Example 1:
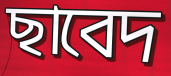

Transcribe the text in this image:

ছাবেদ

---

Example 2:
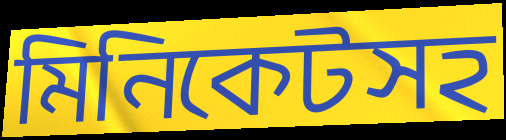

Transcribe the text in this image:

মিনিকেটসহ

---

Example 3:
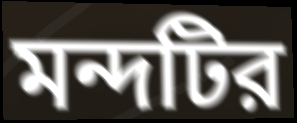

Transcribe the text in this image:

মন্দটির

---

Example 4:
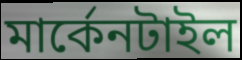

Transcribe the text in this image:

মার্কেনটাইল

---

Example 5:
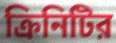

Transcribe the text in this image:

ক্রিনিটির